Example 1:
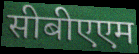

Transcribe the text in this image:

सीबीएएम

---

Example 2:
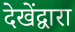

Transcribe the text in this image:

देखेंद्वारा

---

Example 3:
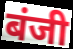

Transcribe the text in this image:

बंजी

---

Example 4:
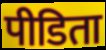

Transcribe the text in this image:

पीडिता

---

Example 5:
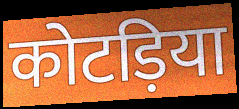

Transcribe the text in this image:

कोटड़िया